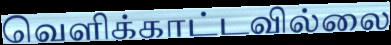
வெளிக்காட்டவில்லை